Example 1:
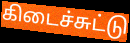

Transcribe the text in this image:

கிடைச்சுட்டு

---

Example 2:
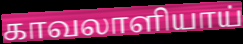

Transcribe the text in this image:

காவலாளியாய்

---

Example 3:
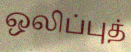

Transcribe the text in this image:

ஒலிப்புத்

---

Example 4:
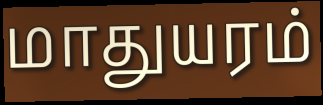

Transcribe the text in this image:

மாதுயரம்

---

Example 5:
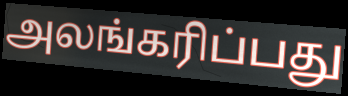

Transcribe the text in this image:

அலங்கரிப்பது